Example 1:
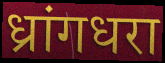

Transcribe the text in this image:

ध्रांगधरा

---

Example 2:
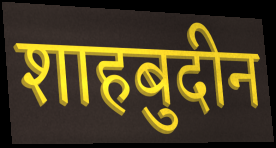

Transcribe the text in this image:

शाहबुदीन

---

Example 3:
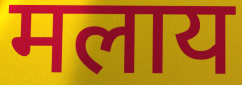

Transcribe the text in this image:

मलाय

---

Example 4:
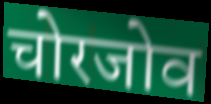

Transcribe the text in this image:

चोरजोव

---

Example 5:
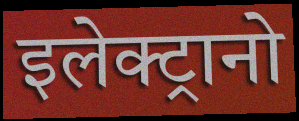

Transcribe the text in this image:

इलेक्ट्रानो